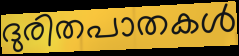
ദുരിതപാതകൾ